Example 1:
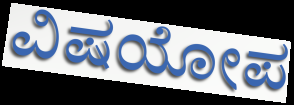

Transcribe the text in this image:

ವಿಷಯೋಪ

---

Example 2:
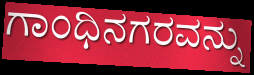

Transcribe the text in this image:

ಗಾಂಧಿನಗರವನ್ನು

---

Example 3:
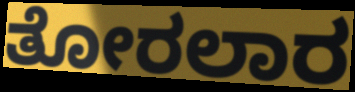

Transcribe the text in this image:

ತೋರಲಾರ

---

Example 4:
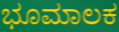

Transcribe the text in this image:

ಭೂಮಾಲಕ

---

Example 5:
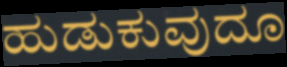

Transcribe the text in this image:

ಹುಡುಕುವುದೂ